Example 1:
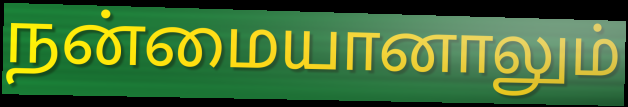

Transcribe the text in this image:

நன்மையானாலும்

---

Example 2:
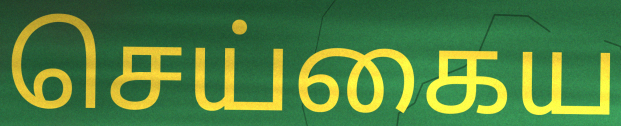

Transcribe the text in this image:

செய்கைய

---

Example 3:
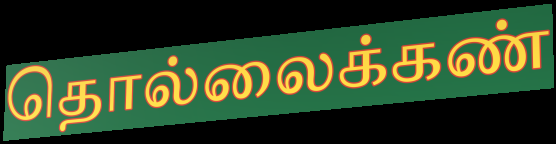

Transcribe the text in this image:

தொல்லைக்கண்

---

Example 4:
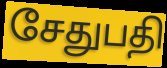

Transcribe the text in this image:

சேதுபதி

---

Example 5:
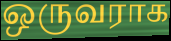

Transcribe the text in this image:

ஒருவராக